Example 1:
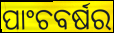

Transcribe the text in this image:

ପାଂଚବର୍ଷର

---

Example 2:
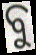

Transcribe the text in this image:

ବୁ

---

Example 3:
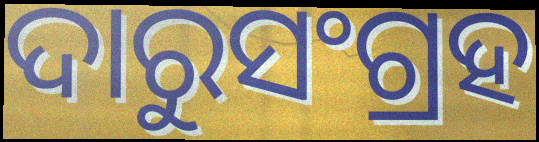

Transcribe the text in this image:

ଦାରୁସଂଗ୍ରହ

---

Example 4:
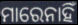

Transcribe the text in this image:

ମାରେନାହିଁ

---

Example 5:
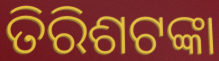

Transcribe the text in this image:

ତିରିଶଟଙ୍କା